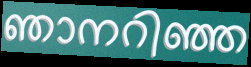
ഞാനറിഞ്ഞ